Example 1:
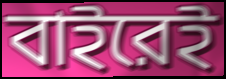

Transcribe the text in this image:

বাইরেই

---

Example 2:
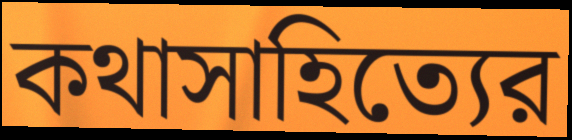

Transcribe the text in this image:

কথাসাহিত্যের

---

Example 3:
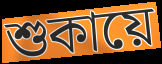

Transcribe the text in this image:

শুকায়ে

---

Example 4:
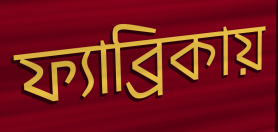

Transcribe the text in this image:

ফ্যাব্রিকায়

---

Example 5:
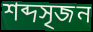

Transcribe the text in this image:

শব্দসৃজন